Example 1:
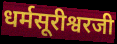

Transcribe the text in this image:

धर्मसूरीश्वरजी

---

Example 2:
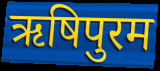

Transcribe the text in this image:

ऋषिपुरम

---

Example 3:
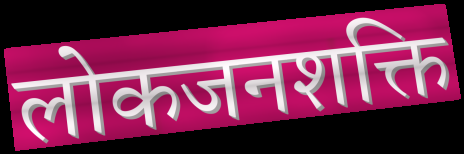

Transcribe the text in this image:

लोकजनशक्ति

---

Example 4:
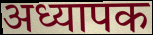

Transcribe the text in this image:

अध्‍यापक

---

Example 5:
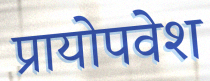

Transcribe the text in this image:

प्रायोपवेश